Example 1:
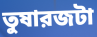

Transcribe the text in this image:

তুষারজটা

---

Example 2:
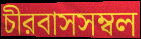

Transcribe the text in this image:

চীরবাসসম্বল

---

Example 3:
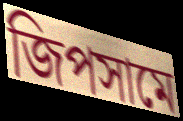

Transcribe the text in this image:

জিপসামে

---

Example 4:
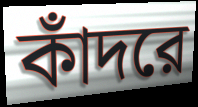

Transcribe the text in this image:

কাঁদরে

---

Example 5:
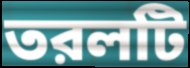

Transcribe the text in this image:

তরলটি